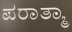
ಪರಾತ್ಮಾ